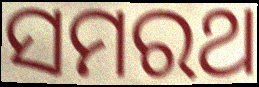
ସମରଥ